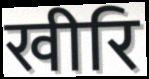
खीरि